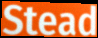
Stead